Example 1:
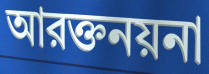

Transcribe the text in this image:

আরক্তনয়না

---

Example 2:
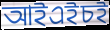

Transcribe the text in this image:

আইএইচই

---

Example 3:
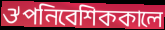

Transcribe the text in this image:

ঔপনিবেশিককালে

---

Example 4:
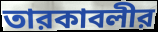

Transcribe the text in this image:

তারকাবলীর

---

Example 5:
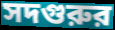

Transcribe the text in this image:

সদগুরুর